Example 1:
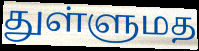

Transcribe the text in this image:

துள்ளுமத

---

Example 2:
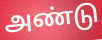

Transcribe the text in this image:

அண்டு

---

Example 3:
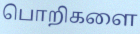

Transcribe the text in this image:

பொறிகளை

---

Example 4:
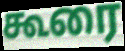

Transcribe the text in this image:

கூரை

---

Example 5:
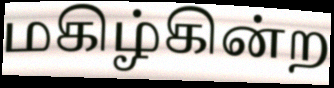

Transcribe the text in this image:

மகிழ்கின்ற